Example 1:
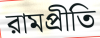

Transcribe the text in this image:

রামপ্রীতি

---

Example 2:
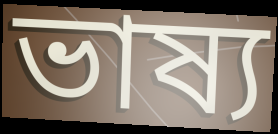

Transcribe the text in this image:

ভাষ্য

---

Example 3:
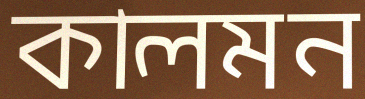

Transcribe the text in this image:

কালমন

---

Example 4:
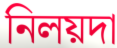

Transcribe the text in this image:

নিলয়দা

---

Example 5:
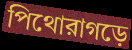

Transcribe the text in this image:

পিথোরাগড়ে